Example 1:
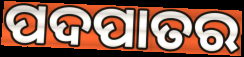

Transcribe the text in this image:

ପଦପାତର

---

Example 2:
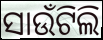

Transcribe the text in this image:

ସାଉଁଟିଲି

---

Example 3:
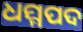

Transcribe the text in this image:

ଧମ୍ମପଦ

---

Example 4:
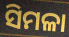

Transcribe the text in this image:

ସିମଳା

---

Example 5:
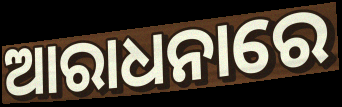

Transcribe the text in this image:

ଆରାଧନାରେ